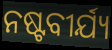
ନଷ୍ଟବୀର୍ଯ୍ୟ